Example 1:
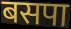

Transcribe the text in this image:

बसपा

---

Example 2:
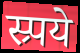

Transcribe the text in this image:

स्र्पये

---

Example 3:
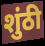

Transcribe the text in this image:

शुंठी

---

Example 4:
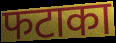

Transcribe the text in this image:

फटाका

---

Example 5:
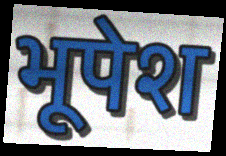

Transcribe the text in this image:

भूपेश